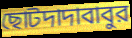
ছোটদাদাবাবুর